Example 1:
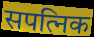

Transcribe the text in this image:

सपत्‍निक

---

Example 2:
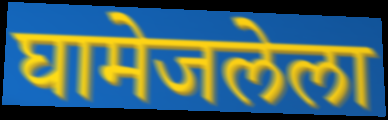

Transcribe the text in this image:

घामेजलेला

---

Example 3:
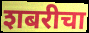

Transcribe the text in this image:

शबरीचा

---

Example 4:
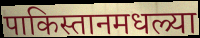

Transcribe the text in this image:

पाकिस्तानमधल्या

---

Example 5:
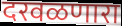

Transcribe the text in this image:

दरवळणारा